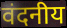
वंदनीय